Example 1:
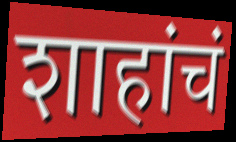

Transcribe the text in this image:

शाहांचं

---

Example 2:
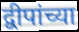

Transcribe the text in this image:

द्वीपांच्या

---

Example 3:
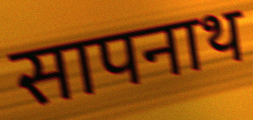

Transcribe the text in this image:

सापनाथ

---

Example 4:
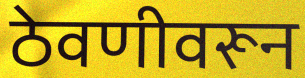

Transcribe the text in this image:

ठेवणीवरून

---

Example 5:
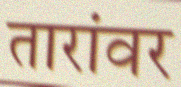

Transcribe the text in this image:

तारांवर